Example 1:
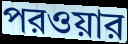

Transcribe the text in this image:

পরওয়ার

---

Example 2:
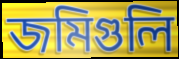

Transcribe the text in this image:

জমিগুলি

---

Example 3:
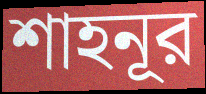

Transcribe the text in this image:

শাহনূর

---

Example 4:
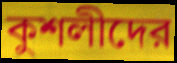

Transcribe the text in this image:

কুশলীদের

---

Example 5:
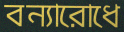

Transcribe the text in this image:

বন্যারোধে